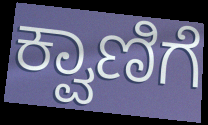
ಕ್ವಾಣಿಗೆ